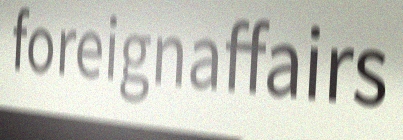
foreignaffairs